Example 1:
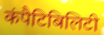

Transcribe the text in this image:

कंपैटिबिलिटी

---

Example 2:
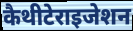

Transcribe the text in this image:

कैथीटेराइजेशन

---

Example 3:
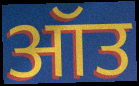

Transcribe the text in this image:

ऑउ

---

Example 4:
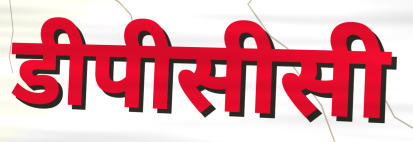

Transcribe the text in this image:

डीपीसीसी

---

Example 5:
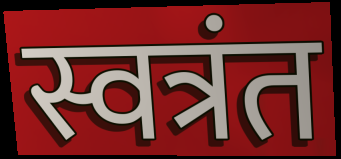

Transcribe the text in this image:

स्वत्रंत